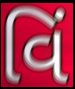
વિં